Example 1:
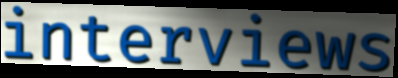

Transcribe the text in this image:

interviews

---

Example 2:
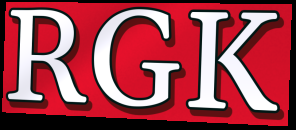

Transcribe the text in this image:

RGK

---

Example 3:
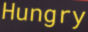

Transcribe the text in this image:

Hungry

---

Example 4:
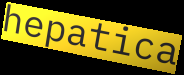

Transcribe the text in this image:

hepatica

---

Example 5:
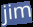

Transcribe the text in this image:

jim